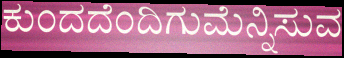
ಕುಂದದೆಂದಿಗುಮೆನ್ನಿಸುವ